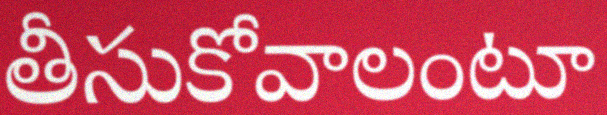
తీసుకోవాలంటూ